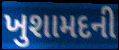
ખુશામદની